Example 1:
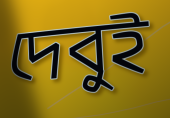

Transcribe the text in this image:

দেবুই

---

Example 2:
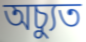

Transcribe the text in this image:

অচ্যুত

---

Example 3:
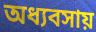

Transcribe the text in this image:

অধ্যবসায়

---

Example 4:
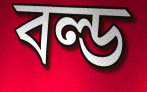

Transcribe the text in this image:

বল্ড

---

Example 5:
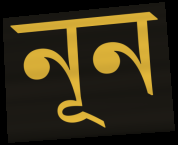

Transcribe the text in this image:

নূন